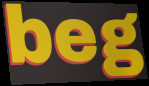
beg